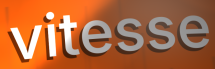
vitesse